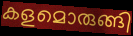
കളമൊരുങ്ങി